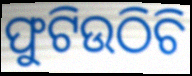
ଫୁଟିଉଠିଚି